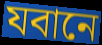
যবানে